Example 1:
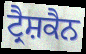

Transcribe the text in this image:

ਟ੍ਰੈਸ਼ਕੈਨ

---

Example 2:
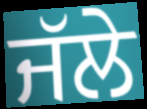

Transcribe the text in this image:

ਜੱਲੇ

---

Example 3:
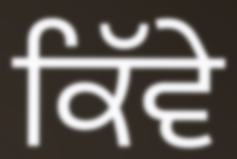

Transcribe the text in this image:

ਕਿੱਵੇ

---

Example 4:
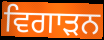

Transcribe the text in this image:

ਵਿਗਾੜਨ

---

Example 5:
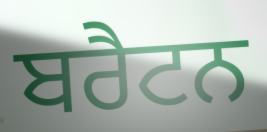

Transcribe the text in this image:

ਬਰੈਟਨ